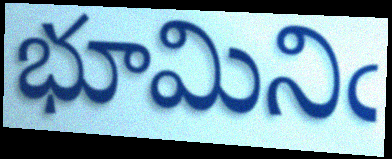
భూమినిఁ